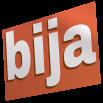
bija